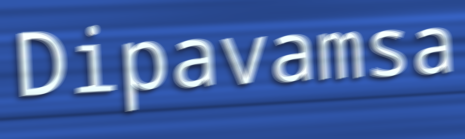
Dipavamsa